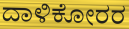
ದಾಳಿಕೋರರ